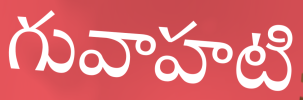
గువాహటి